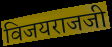
विजयराजजी